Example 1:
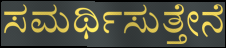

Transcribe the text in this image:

ಸಮರ್ಥಿಸುತ್ತೇನೆ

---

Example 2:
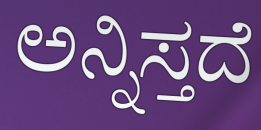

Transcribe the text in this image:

ಅನ್ನಿಸ್ತದೆ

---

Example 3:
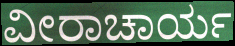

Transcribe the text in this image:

ವೀರಾಚಾರ್ಯ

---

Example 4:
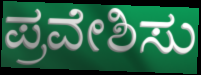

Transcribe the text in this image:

ಪ್ರವೇಶಿಸು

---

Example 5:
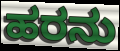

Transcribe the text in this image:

ಹರನು